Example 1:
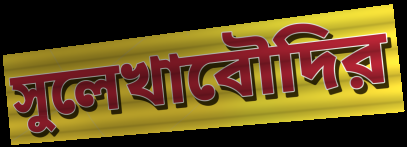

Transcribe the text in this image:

সুলেখাবৌদির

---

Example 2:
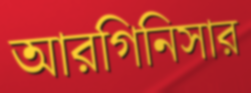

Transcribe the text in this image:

আরগিনিসার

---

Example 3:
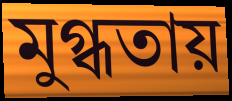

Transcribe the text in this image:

মুগ্ধতায়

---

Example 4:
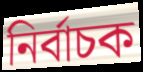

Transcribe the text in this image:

নির্বাচক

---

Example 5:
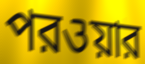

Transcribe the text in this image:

পরওয়ার